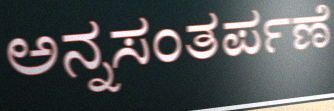
ಅನ್ನಸಂತರ್ಪಣೆ